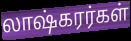
லாஷ்கரர்கள்